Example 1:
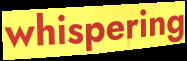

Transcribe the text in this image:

whispering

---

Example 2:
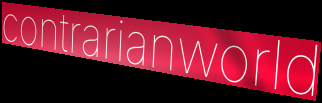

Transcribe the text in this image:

contrarianworld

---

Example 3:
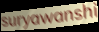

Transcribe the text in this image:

suryawanshi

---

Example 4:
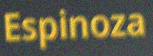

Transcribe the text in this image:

Espinoza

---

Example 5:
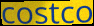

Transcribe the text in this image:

costco